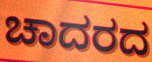
ಚಾದರದ